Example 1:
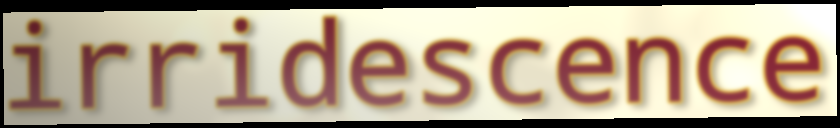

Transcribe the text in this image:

irridescence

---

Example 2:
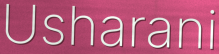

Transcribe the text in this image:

Usharani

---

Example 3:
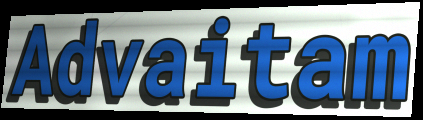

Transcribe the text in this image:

Advaitam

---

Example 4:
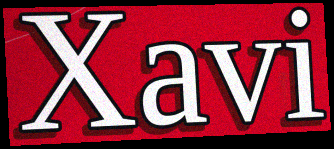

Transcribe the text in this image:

Xavi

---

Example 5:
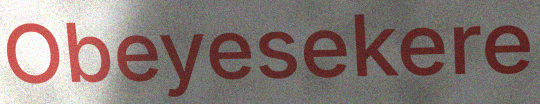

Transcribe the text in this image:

Obeyesekere